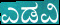
ಎಡವಿ